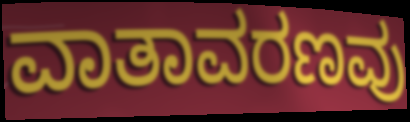
ವಾತಾವರಣವು